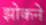
झोकने